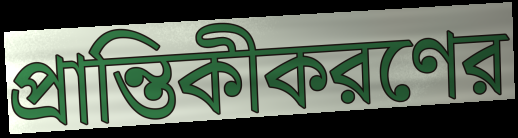
প্রান্তিকীকরণের